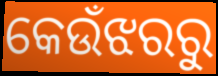
କେଉଁଝରରୁ